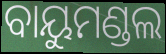
ବାୟୁମଣ୍ଡଲ